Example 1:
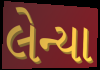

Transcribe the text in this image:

લેન્યા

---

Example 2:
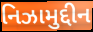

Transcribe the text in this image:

નિઝામુદ્દીન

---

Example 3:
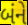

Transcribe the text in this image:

બંને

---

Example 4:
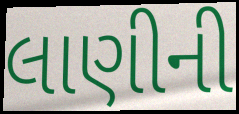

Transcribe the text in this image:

લાણીની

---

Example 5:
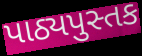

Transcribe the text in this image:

પાઠ્યપુસ્તક